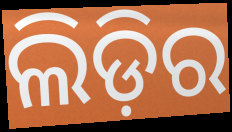
ଲିଡ଼ିର